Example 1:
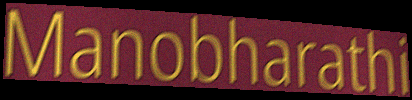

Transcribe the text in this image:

Manobharathi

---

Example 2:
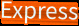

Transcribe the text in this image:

Express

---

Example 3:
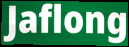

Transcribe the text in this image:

Jaflong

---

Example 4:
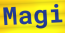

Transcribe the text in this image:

Magi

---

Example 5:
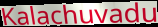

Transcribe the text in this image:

Kalachuvadu